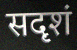
सदृशं